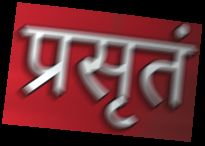
प्रसृतं